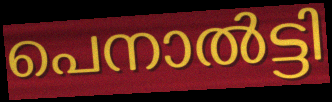
പെനാൽട്ടി